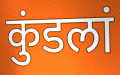
कुंडलां